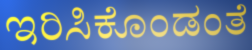
ಇರಿಸಿಕೊಂಡಂತೆ